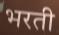
भरती